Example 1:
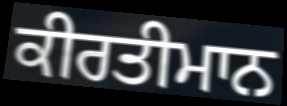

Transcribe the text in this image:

ਕੀਰਤੀਮਾਨ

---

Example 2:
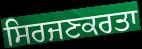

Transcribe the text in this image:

ਸਿਰਜਣਕਰਤਾ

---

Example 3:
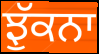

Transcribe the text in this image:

ਝੁੱਕਨਾ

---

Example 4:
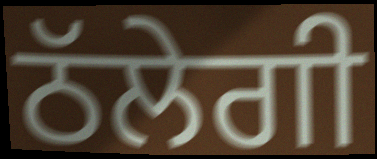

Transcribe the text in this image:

ਠੱਲੇਗੀ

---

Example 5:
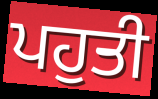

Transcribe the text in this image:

ਪਹੁਤੀ